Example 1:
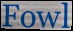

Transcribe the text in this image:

Fowl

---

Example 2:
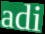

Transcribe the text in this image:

adi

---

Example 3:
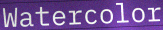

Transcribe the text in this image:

Watercolor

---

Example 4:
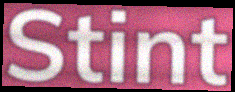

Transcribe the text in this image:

Stint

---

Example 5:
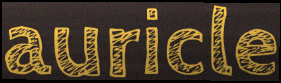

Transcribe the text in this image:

auricle